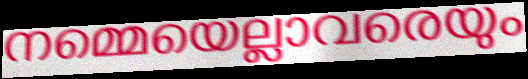
നമ്മെയെല്ലാവരെയും